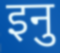
इनु